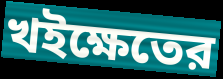
খইক্ষেতের